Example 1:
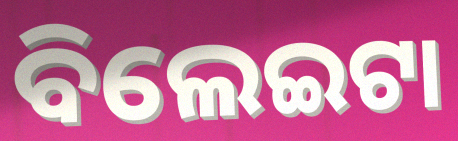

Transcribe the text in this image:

ବିଲେଇଟା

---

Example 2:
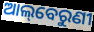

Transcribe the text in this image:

ଆଲ୍‌ବେରୁଣୀ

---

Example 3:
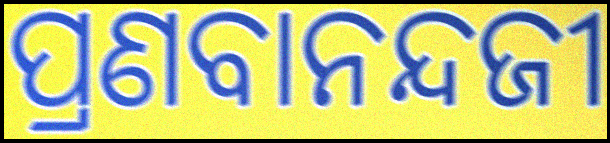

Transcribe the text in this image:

ପ୍ରଣବାନନ୍ଦଜୀ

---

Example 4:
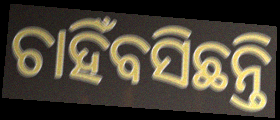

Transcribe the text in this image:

ଚାହିଁବସିଛନ୍ତି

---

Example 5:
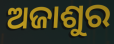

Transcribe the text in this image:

ଅଜାଶୁର